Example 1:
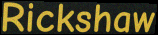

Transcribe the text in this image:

Rickshaw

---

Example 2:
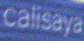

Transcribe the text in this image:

calisaya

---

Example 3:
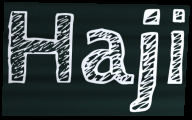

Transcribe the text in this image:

Haji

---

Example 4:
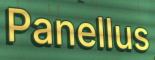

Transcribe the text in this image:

Panellus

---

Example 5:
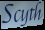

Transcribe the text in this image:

Scyth